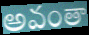
అవంతా